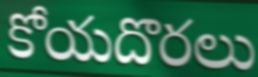
కోయదొరలు